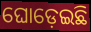
ଘୋଡ଼େଇଛି